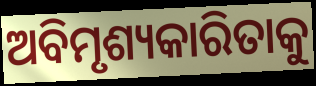
ଅବିମୃଶ୍ୟକାରିତାକୁ